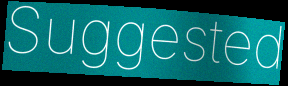
Suggested